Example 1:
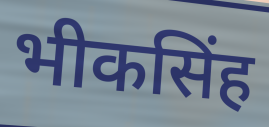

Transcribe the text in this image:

भीकसिंह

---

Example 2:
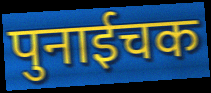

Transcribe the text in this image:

पुनाईचक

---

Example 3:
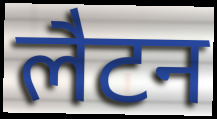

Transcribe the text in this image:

लैटन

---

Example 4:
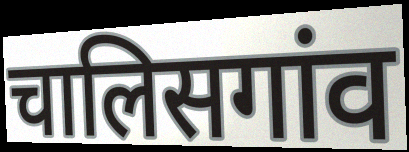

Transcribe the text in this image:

चालिसगांव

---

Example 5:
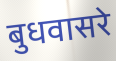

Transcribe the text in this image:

बुधवासरे